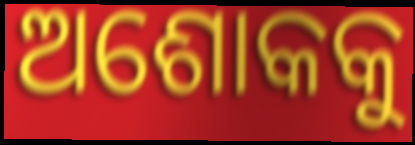
ଅଶୋକକୁ